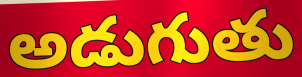
అడుగుతు